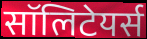
सॉलिटेयर्स